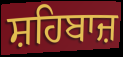
ਸ਼ਹਿਬਾਜ਼